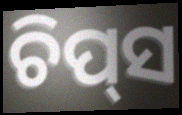
ଚିପ୍‌ସ